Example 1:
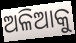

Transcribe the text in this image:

ଅଳିଆକୁ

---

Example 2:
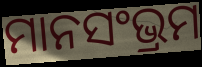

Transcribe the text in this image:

ମାନସଂଭ୍ରମ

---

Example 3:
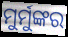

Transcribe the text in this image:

ମୁର୍ମୁଙ୍କର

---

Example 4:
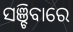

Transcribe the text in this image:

ସଞ୍ଚିବାରେ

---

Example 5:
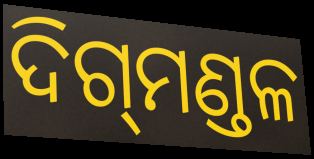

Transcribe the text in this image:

ଦିଗ୍‌ମଣ୍ଡଳ